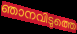
ഞാനവിടുത്തെ